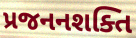
પ્રજનનશક્તિ